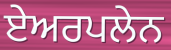
ਏਅਰਪਲੇਨ